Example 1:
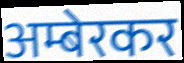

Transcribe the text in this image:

अम्बेरकर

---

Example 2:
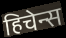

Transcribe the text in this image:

हिचेन्स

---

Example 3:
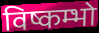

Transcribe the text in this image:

विष्कम्भो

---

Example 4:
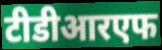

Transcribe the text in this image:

टीडीआरएफ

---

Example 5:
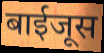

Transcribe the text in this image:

बाईजूस